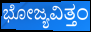
ಭೋಜ್ಯವಿತ್ತಂ